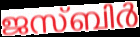
ജസ്ബിർ